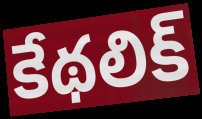
కేథలిక్